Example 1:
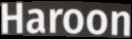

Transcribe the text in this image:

Haroon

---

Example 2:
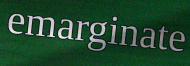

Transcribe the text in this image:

emarginate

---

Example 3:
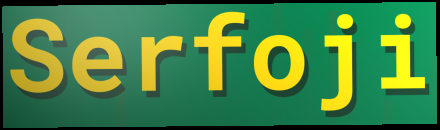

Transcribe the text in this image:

Serfoji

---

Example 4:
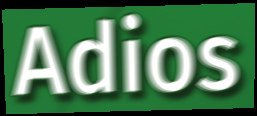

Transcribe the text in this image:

Adios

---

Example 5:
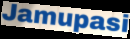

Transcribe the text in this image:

Jamupasi